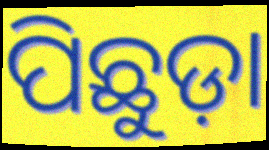
ପିଛୁଡ଼ା